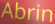
Abrin